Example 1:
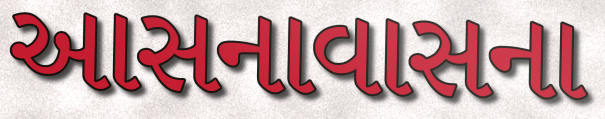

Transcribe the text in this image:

આસનાવાસના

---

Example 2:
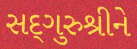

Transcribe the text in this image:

સદ્‌ગુરુશ્રીને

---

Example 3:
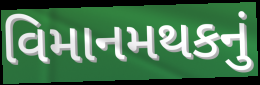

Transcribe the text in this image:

વિમાનમથકનું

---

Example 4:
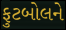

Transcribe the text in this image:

ફુટબોલને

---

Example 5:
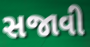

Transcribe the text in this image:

સજાવી